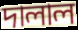
দালাল